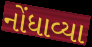
નોંધાવ્યા